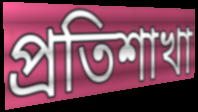
প্রতিশাখা